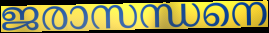
ജരാസന്ധനെ